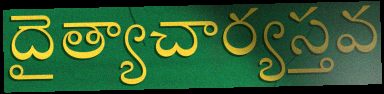
దైత్యాచార్యస్తవ